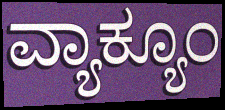
ವ್ಯಾಕ್ಯೂಂ